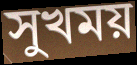
সুখময়